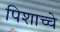
पिशाच्चे